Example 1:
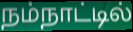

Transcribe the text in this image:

நம்நாட்டில்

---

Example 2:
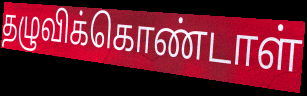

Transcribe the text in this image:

தழுவிக்கொண்டாள்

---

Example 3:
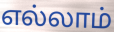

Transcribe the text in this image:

எல்லாம்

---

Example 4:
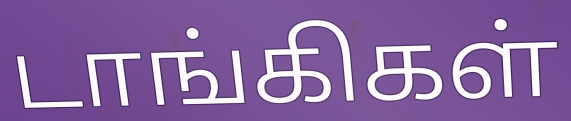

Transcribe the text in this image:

டாங்கிகள்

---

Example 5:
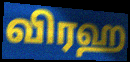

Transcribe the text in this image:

விரஹ